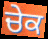
ਚੇਕ